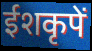
ईशकृपें